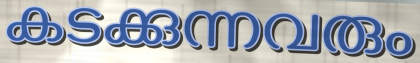
കടക്കുന്നവരും